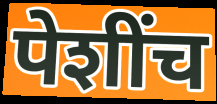
पेशींच